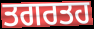
ਤਗਰਤਹ